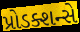
પ્રોડક્શન્સે